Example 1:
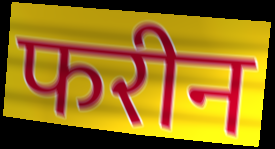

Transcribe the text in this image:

फरीन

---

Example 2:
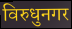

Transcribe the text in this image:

विरुधुनगर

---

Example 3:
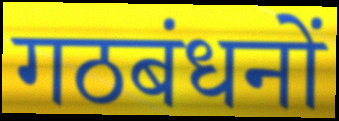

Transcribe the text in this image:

गठबंधनों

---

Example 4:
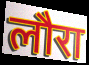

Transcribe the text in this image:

लौरा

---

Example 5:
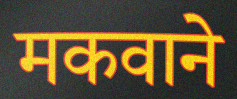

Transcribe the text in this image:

मकवाने